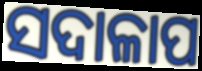
ସଦାଳାପ